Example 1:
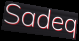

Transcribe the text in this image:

Sadeq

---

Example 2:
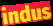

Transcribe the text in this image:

indus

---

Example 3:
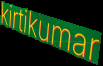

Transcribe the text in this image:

kirtikumar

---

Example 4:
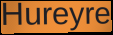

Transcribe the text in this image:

Hureyre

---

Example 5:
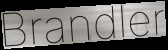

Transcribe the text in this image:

Brandler